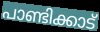
പാണ്ടിക്കാട്